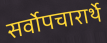
सर्वोपचारार्थे